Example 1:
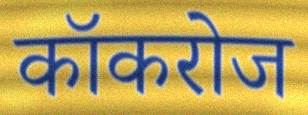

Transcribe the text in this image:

कॉकरोज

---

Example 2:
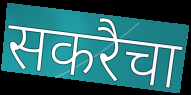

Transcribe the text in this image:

सकरैचा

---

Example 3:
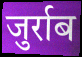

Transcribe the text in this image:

जुर्राब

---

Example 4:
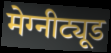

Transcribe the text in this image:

मेग्नीट्यूड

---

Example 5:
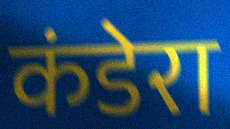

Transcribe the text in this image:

कंडेरा